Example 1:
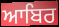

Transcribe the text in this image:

ਆਬਿਰ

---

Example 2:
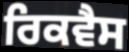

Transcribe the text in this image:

ਰਿਕਵੈਸ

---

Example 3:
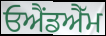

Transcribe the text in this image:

ਓਐਂਡਐੱਮ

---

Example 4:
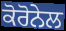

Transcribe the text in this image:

ਕੋਰੋਨੇਲ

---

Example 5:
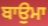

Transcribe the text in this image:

ਬਾਉਮਾ